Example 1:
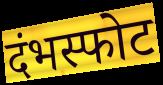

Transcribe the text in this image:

दंभस्फोट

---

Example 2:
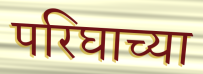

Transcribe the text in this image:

परिघाच्या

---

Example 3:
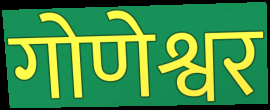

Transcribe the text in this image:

गोणेश्वर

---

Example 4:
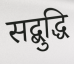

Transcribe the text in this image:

सद्बुद्धि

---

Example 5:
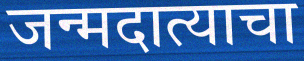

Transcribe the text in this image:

जन्मदात्याचा